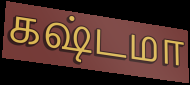
கஷ்டமா